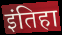
इंतिहा